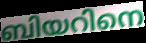
ബിയറിനെ